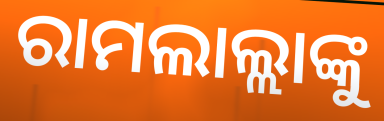
ରାମଲାଲ୍ଲାଙ୍କୁ